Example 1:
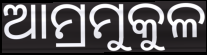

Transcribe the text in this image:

ଆମ୍ରମୁକୁଳ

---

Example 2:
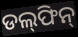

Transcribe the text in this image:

ଡଲ୍‍ଫିନ୍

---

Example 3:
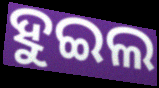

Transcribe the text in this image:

ହୁଇଲ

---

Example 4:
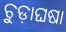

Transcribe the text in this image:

ଚୁଡ଼ାଘଷା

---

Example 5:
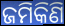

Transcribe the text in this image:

ଜମିକିଣି